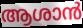
ആശാൻ